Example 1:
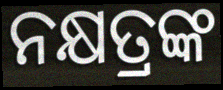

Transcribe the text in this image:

ନକ୍ଷତ୍ରଙ୍କ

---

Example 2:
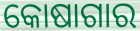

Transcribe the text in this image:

କୋଷାଗାର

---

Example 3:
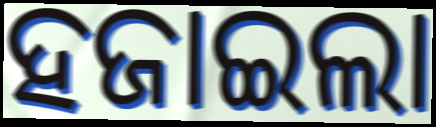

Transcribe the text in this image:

ହଜାଇଲା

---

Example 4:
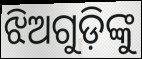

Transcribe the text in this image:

ଝିଅଗୁଡ଼ିଙ୍କୁ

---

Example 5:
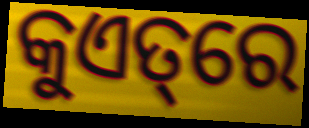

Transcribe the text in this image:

କୁଏତ୍‌ରେ